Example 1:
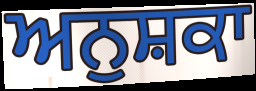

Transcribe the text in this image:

ਅਨੁਸ਼ਕਾ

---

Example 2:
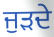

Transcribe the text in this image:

ਜੁੜਦੇ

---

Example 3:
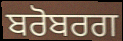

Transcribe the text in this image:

ਬਰੋਬਰਗ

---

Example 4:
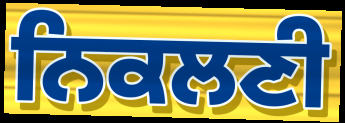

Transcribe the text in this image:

ਨਿਕਲਣੀ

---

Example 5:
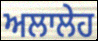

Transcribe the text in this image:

ਅਲਾਲੇਹ